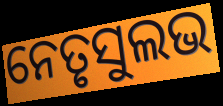
ନେତୃସୁଲଭ